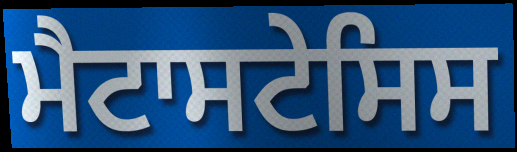
ਮੈਟਾਸਟੇਸਿਸ